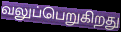
வலுப்பெறுகிறது